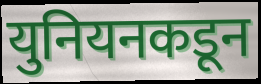
युनियनकडून